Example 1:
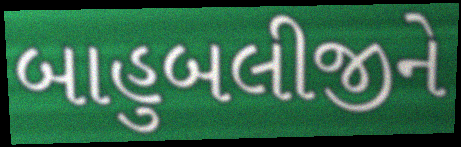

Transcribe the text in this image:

બાહુબલીજીને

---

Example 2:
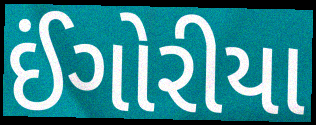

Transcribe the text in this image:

ઈંગોરીયા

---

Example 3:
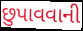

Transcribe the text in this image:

છુપાવવાની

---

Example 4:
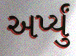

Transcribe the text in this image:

અર્પ્યું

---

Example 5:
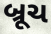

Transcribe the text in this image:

બ્રૂચ